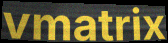
vmatrix